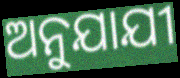
ଅନୁଯାଯୀ